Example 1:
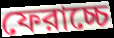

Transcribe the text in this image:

ফেরাচ্চে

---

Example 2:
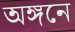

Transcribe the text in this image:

অঙ্গনে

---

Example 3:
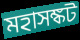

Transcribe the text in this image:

মহাসঙ্কট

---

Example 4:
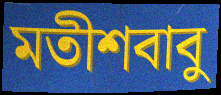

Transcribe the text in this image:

মতীশবাবু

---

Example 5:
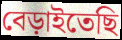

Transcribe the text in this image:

বেড়াইতেছি